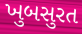
ખુબસુરત